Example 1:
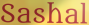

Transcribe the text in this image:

Sashal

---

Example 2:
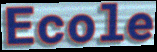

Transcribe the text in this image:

Ecole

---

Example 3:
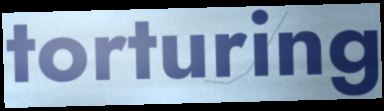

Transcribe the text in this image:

torturing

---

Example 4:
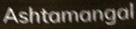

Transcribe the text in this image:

Ashtamangal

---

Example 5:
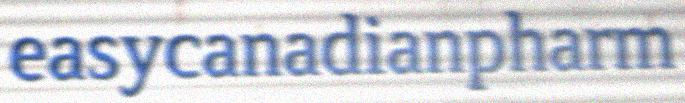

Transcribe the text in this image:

easycanadianpharm